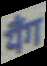
यैंग